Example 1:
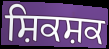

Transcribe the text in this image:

ਸ਼ਿਕਸ਼ਕ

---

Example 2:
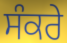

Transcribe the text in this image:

ਸੰਕਰੇ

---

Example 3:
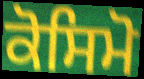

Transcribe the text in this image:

ਕੋਸਿਮੋ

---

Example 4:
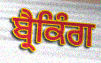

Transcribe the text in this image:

ਬ੍ਰੈਕਿੰਗ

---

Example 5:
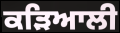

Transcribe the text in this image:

ਕੜਿਆਲੀ